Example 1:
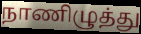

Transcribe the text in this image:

நாணிழுத்து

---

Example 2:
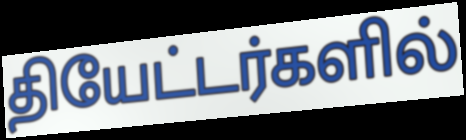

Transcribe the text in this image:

தியேட்டர்களில்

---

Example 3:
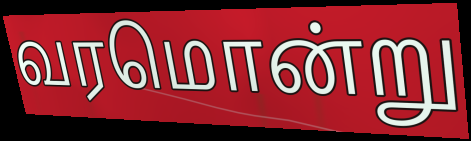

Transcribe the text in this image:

வரமொன்று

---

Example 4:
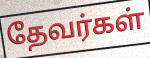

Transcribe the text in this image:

தேவர்கள்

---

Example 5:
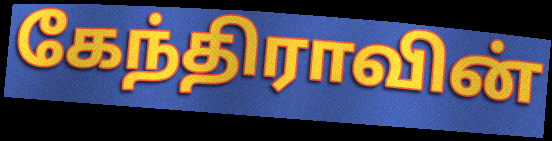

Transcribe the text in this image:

கேந்திராவின்